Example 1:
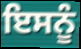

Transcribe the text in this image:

ਇਸਨੂੰ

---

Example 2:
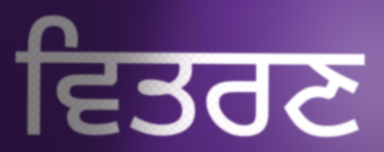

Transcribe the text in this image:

ਵਿਤਰਣ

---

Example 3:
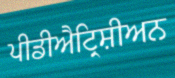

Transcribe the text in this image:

ਪੀਡੀਐਟ੍ਰਿਸ਼ੀਅਨ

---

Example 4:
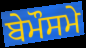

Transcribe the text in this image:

ਬੇਮੌਸਮੇ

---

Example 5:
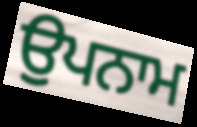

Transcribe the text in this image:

ਉਪਨਾਮ